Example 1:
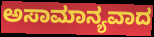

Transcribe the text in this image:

ಅಸಾಮಾನ್ಯವಾದ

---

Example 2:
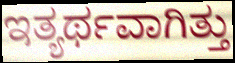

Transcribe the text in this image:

ಇತ್ಯರ್ಥವಾಗಿತ್ತು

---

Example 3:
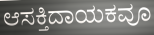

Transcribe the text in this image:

ಆಸಕ್ತಿದಾಯಕವೂ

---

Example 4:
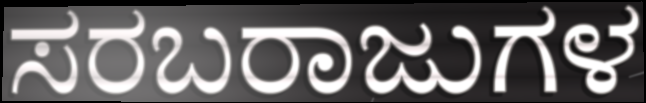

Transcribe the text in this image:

ಸರಬರಾಜುಗಳ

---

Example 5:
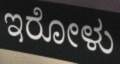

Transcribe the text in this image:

ಇರೋಳು